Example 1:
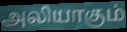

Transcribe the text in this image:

அலியாகும்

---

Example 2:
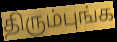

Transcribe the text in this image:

திரும்புங்க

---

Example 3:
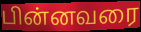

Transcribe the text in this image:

பின்னவரை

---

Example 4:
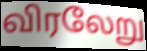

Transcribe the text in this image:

விரலேறு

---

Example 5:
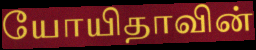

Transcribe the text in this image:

யோயிதாவின்